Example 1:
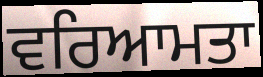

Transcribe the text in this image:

ਵਰਿਆਮਤਾ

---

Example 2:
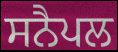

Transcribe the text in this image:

ਸਨੈਪਲ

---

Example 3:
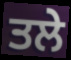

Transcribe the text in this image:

ਤਲੇ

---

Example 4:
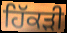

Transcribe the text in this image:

ਹਿੱਕੜੀ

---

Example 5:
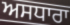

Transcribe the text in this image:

ਅਸਧਾਰਾ